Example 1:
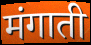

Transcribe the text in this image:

मंगाती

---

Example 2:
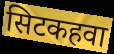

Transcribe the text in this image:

सिटकहवा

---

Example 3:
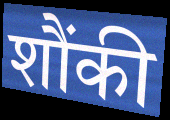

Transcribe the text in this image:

शौंकी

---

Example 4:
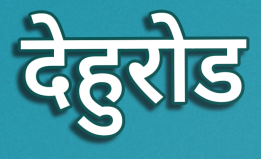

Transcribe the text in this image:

देहुरोड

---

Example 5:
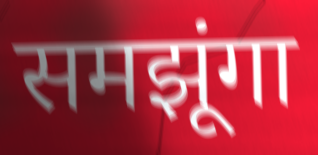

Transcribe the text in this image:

समझूंगा